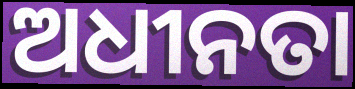
ଅଧୀନତା